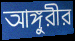
আঙ্গুরীর